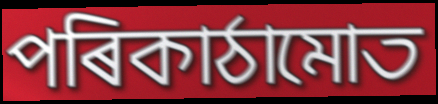
পৰিকাঠামোত